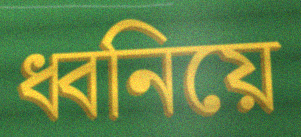
ধ্বনিয়ে